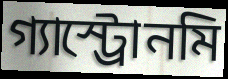
গ্যাস্ট্রোনমি